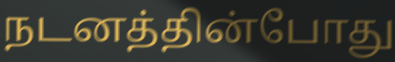
நடனத்தின்போது